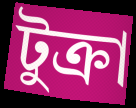
টুক্রা